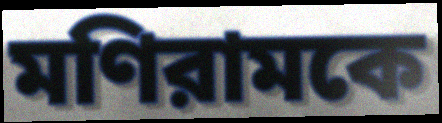
মণিরামকে